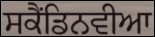
ਸਕੈਂਡਿਨਵੀਆ